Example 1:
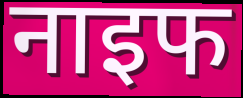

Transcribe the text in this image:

नाइफ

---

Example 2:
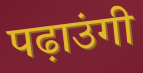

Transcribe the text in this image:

पढ़ाउंगी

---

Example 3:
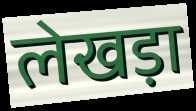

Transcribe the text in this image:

लेखड़ा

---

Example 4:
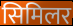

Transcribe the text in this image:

सिमिलर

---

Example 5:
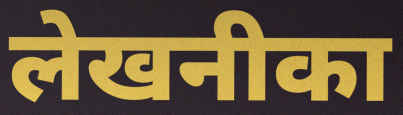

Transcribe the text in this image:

लेखनीका